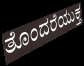
ತೊಂದರೆಯುಕ್ತ